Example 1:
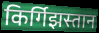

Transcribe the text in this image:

किर्गिझस्तान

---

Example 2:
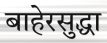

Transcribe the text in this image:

बाहेरसुद्धा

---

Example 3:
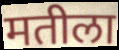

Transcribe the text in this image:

मतीला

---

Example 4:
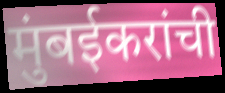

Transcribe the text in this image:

मुंबईकरांची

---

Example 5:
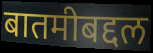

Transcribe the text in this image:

बातमीबद्दल